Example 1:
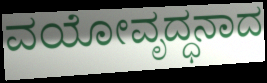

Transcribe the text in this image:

ವಯೋವೃದ್ಧನಾದ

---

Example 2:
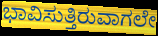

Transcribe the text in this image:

ಭಾವಿಸುತ್ತಿರುವಾಗಲೇ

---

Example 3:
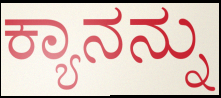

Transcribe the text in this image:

ಕ್ಯಾನನ್ನು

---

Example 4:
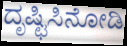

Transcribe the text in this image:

ದೃಷ್ಟಿಸಿನೋಡಿ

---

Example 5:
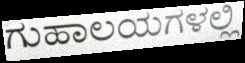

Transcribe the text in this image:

ಗುಹಾಲಯಗಳಲ್ಲಿ